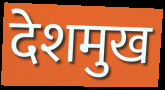
देशमुख